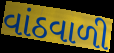
વાંઠવાળી